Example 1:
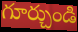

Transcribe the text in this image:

గూర్చుండి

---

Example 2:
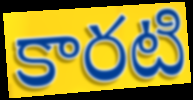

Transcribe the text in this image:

కారటి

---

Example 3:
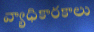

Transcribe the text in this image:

వ్యాధికారకాలు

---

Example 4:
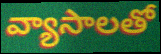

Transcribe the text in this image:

వ్యాసాలతో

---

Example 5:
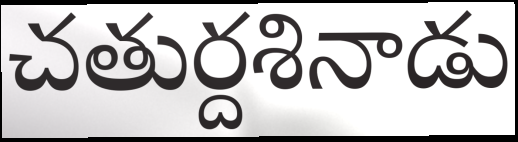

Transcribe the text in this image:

చతుర్దశినాడు